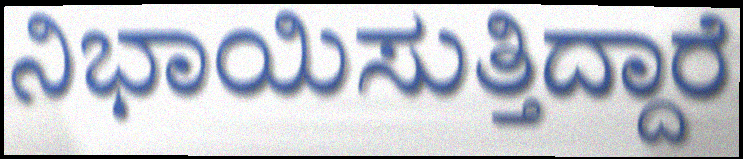
ನಿಭಾಯಿಸುತ್ತಿದ್ದಾರೆ